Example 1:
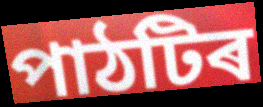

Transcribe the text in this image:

পাঠটিৰ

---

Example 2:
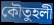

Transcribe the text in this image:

কৌতুহলী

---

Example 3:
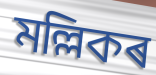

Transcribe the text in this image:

মল্লিকৰ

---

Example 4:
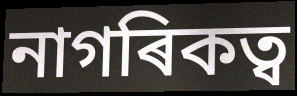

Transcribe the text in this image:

নাগৰিকত্ব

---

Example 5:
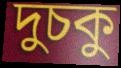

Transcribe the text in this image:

দুচকু